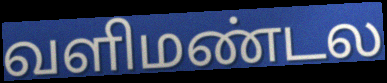
வளிமண்டல